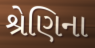
શ્રેણિના